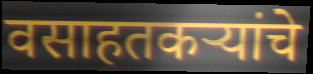
वसाहतकऱ्यांचे